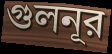
গুলনূর